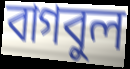
বাগবুল